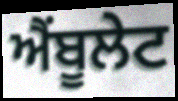
ਐਂਬੂਲੇਟ